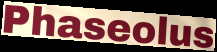
Phaseolus